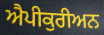
ਐਪੀਕੁਰੀਅਨ